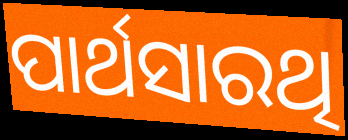
ପାର୍ଥସାରଥି